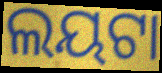
ଲୟଟା